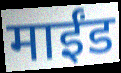
माईंड